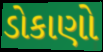
ડોકાણો